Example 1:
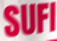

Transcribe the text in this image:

SUFI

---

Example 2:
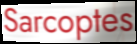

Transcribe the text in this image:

Sarcoptes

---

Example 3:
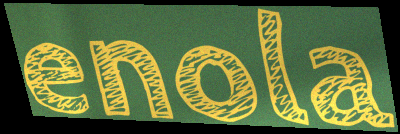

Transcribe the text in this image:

enola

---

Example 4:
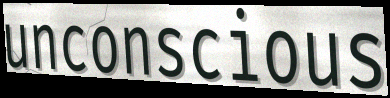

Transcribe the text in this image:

unconscious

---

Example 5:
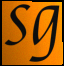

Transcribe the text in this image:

sg